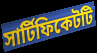
সার্টিফিকেটটি